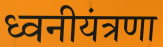
ध्वनीयंत्रणा